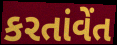
કરતાંવેંત